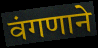
वंगणाने